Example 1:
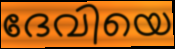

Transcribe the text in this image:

ദേവിയെ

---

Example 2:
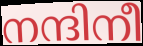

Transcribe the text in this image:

നന്ദിനീ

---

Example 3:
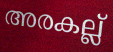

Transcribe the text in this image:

അരകല്ല്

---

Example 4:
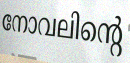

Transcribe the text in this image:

നോവലിന്റെ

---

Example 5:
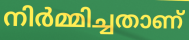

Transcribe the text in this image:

നിർമ്മിച്ചതാണ്